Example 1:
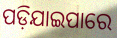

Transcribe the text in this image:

ପଡ଼ିଯାଇପାରେ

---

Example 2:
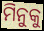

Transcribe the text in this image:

ମିନୁକୁ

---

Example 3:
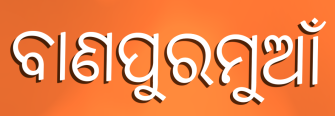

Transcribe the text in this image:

ବାଣପୁରମୁଆଁ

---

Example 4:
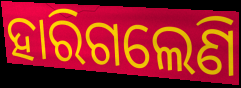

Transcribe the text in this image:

ହାରିଗଲେଣି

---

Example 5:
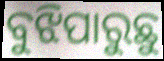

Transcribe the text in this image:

ବୁଝିପାରୁଛୁ